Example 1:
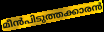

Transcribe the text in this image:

മീൻപിടുത്തക്കാരൻ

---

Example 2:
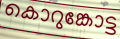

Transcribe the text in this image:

കൊറുങ്കോട്ട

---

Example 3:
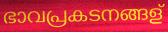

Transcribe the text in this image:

ഭാവപ്രകടനങ്ങള്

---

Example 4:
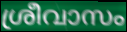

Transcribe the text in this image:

ശ്രീവാസം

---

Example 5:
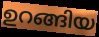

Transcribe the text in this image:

ഉറങ്ങിയ